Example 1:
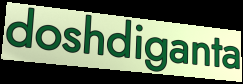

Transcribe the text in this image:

doshdiganta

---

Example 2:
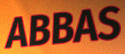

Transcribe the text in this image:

ABBAS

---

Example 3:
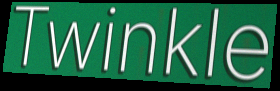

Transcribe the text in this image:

Twinkle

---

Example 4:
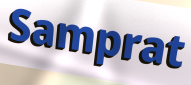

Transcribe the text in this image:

Samprat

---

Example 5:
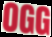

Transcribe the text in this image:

OGG